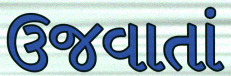
ઉજવાતાં